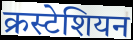
क्रस्टेशियन